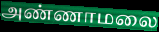
அண்ணாமலை